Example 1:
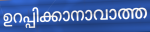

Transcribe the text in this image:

ഉറപ്പിക്കാനാവാത്ത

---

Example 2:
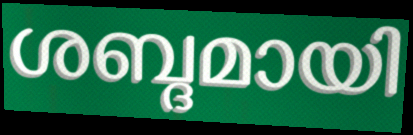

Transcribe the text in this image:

ശബ്ദമായി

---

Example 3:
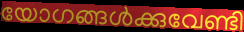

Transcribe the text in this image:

യോഗങ്ങൾക്കുവേണ്ടി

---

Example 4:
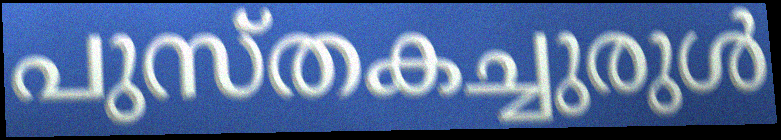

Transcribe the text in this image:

പുസ്തകച്ചുരുൾ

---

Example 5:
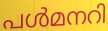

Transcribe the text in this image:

പൾമനറി